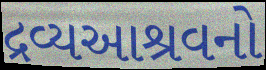
દ્રવ્યઆશ્રવનો